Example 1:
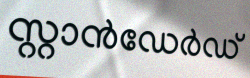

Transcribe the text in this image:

സ്റ്റാൻഡേർഡ്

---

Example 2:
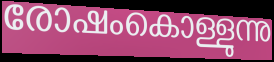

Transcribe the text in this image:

രോഷംകൊള്ളുന്നു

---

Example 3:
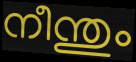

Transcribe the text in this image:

നീന്തും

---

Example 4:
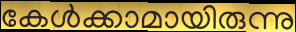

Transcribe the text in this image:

കേൾക്കാമായിരുന്നു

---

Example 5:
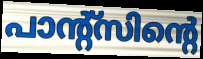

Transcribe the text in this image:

പാന്റ്സിന്റെ